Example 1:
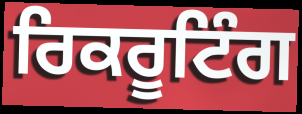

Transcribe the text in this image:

ਰਿਕਰੂਟਿੰਗ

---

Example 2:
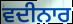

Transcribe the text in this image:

ਵਦੀਨਾਰ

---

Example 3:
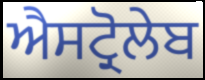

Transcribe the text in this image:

ਐਸਟ੍ਰੋਲੇਬ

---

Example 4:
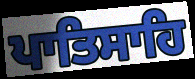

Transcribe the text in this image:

ਪਾਤਿਸਾਹਿ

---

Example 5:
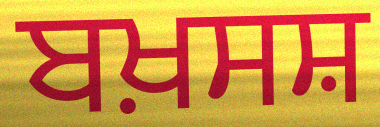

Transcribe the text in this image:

ਬਖ਼ਸਸ਼